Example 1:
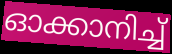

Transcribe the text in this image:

ഓക്കാനിച്ച്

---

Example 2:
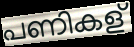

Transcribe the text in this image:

പണികള്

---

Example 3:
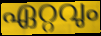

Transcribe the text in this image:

ഏറ്റവും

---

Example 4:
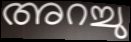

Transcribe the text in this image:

അറച്ചു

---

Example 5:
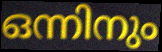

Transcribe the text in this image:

ഒന്നിനും